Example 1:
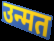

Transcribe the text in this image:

उन्मत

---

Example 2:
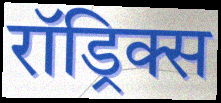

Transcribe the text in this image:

रॉड्रिक्स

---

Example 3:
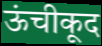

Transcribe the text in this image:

ऊंचीकूद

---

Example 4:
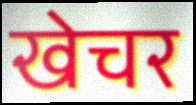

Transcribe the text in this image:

खेचर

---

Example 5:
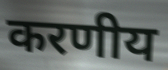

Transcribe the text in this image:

करणीय